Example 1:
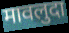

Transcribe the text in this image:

मावलुदा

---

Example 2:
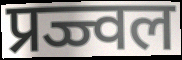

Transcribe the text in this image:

प्रज्ज्वल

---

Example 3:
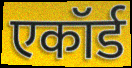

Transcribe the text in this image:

एकॉर्ड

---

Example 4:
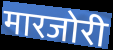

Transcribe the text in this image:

मारजोरी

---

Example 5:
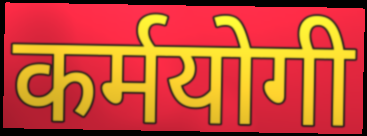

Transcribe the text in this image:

कर्मयोगी